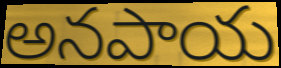
అనపాయ